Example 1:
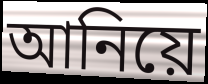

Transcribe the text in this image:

আনিয়ে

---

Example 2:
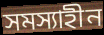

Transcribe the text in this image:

সমস্যাহীন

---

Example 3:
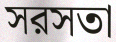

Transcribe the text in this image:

সরসতা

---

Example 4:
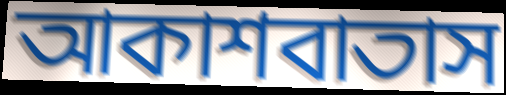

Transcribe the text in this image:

আকাশবাতাস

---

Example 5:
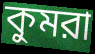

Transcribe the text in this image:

কুমরা